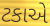
ટકાએ